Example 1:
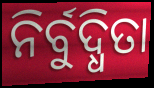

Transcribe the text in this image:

ନିର୍ବୁଦ୍ଧିତା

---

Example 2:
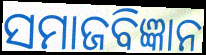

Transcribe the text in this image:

ସମାଜବିଜ୍ଞାନ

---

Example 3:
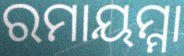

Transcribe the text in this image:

ରମାୟମ୍ମା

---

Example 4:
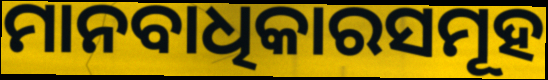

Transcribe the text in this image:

ମାନବାଧିକାରସମୂହ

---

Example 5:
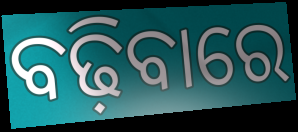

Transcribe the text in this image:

ବଢ଼ିବାରେ